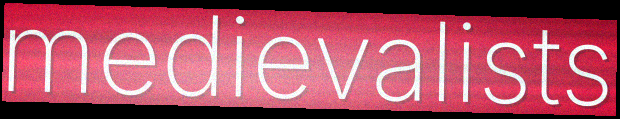
medievalists